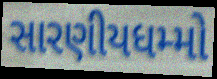
સારણીયધમ્મો